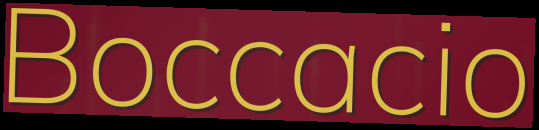
Boccacio